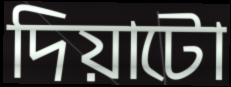
দিয়াটো